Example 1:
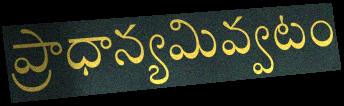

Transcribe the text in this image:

ప్రాధాన్యమివ్వటం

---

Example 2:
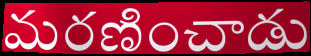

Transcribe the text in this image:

మరణించాడు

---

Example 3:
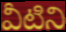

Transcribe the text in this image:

వీటిని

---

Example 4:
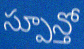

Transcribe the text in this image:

స్పూన్తో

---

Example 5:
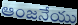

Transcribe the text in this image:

ఆంజనేయు